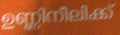
ഉണ്ണിനീലിക്ക്